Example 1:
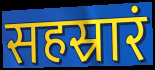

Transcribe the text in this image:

सहस्रारं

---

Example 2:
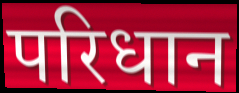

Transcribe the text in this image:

परिधान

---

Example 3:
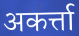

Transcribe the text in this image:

अकर्त्ता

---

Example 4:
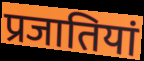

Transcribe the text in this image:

प्रजातियां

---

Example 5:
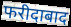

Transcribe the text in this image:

फरीदाबाद